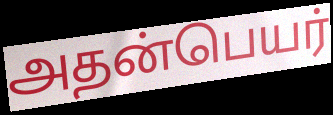
அதன்பெயர்